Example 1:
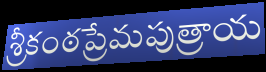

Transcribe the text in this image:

శ్రీకంఠప్రేమపుత్రాయ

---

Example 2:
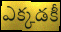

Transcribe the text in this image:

ఎక్కడకీ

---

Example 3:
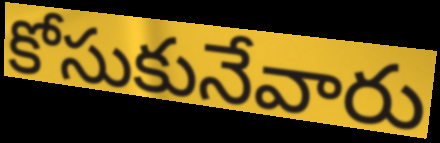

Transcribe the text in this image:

కోసుకునేవారు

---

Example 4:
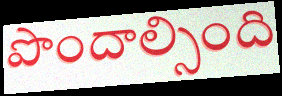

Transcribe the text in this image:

పొందాల్సింది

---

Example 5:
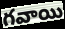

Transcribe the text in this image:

గవాయి